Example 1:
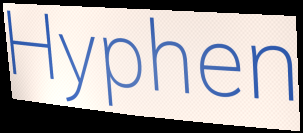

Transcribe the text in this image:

Hyphen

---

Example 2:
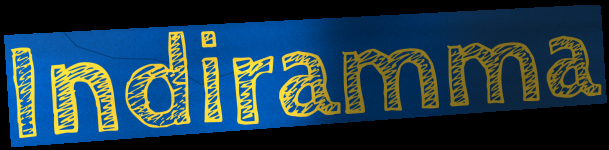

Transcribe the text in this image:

Indiramma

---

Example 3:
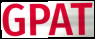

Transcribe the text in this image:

GPAT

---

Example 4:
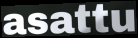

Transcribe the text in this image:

asattu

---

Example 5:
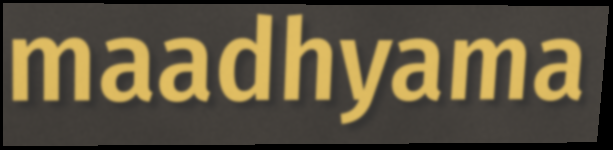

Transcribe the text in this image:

maadhyama